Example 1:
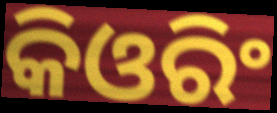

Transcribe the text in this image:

କିଓରିଂ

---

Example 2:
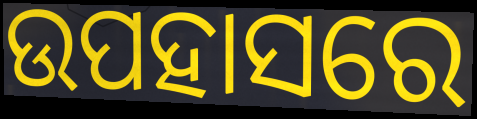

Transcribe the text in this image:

ଉପହାସରେ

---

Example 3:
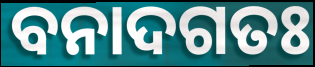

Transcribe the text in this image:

ବନାଦଗତଃ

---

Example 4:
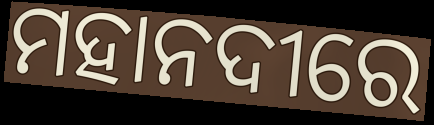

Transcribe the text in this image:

ମହାନଦୀରେ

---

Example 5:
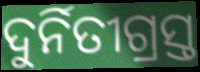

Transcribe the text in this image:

ଦୁର୍ନିତୀଗ୍ରସ୍ତ